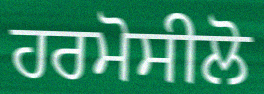
ਹਰਮੋਸੀਲੋ